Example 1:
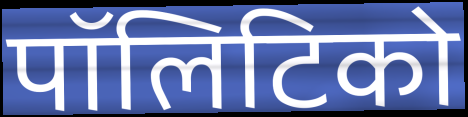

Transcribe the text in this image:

पॉलिटिको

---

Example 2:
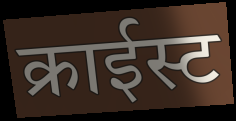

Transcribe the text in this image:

क्राईस्ट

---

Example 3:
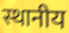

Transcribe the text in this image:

स्‍थानीय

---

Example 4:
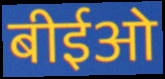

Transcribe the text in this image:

बीईओ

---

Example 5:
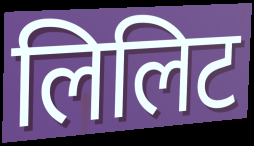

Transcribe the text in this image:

लिलिट